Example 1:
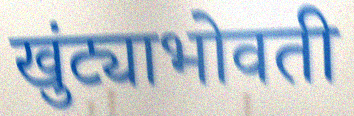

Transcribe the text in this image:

खुंट्याभोवती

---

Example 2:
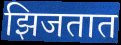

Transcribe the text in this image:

झिजतात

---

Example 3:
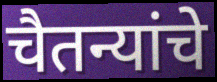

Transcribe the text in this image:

चैतन्यांचे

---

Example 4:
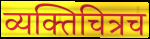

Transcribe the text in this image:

व्यक्तिचित्रच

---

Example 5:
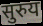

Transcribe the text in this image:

सुरुय